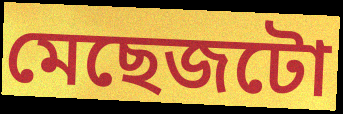
মেছেজটো